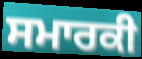
ਸਮਾਰਕੀ